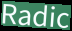
Radic